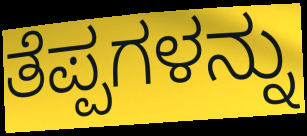
ತೆಪ್ಪಗಳನ್ನು